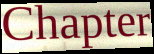
Chapter